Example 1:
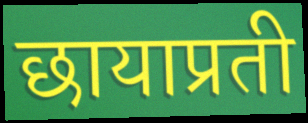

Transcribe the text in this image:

छायाप्रती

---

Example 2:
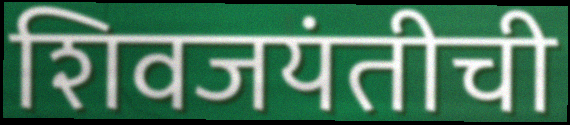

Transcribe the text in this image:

शिवजयंतीची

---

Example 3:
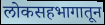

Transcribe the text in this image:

लोकसहभागातून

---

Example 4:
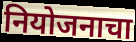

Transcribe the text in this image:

नियोजनाचा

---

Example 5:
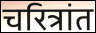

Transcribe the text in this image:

चरित्रांत